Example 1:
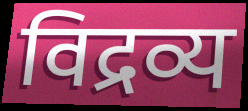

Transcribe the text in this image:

विद्रव्य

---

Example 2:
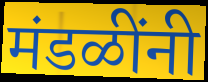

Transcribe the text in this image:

मंडळींनी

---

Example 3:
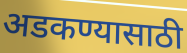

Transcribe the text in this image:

अडकण्यासाठी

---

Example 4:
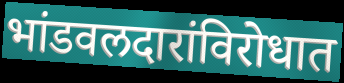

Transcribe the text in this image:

भांडवलदारांविरोधात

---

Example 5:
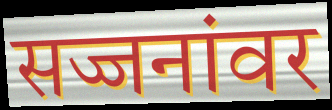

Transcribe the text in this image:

सज्जनांवर